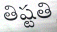
తిష్టతి